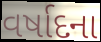
વર્ષાદના